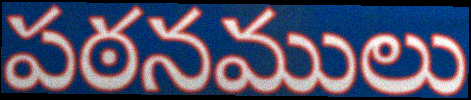
పఠనములు